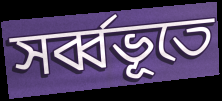
সর্ব্বভূতে